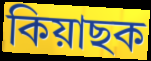
কিয়াছক